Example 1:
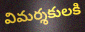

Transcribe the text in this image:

విమర్శకులకి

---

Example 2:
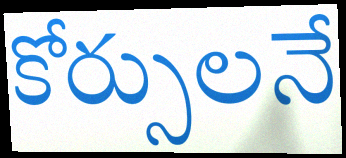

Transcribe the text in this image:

కోర్సులనే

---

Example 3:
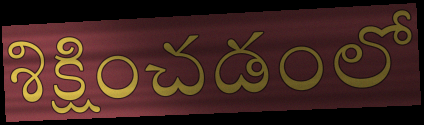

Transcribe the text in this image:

శిక్షించడంలో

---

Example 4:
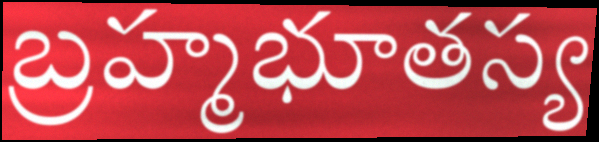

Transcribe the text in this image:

బ్రహ్మభూతస్య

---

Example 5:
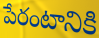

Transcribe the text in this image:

పేరంటానికి